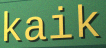
kaik